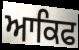
ਆਕਿਫ